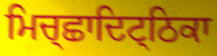
ਮਿਚ੍ਛਾਦਿਟ੍ਠਿਕਾ